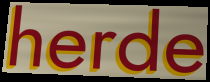
herde